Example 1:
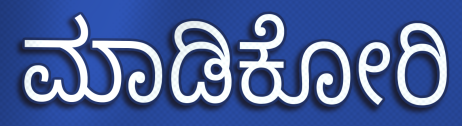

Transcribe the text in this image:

ಮಾಡಿಕೋರಿ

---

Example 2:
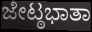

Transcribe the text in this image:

ಜೇಟ್ಠಭಾತಾ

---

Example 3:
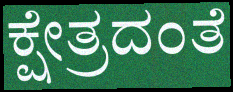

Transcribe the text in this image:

ಕ್ಷೇತ್ರದಂತೆ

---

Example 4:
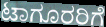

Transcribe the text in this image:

ಟಾಗೂರರಿಗೆ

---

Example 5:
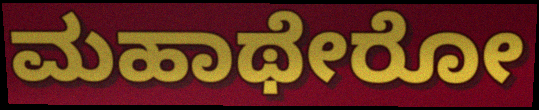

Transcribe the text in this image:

ಮಹಾಥೇರೋ